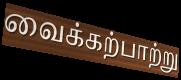
வைக்கற்பாற்று